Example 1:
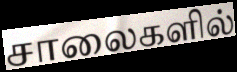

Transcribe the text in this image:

சாலைகளில்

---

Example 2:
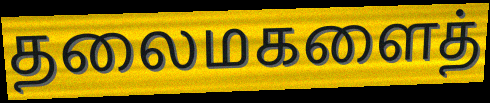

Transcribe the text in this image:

தலைமகளைத்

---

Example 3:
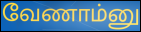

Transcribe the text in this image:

வேணாம்னு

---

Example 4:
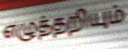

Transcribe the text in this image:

எழுத்தறியும்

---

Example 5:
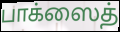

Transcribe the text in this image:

பாக்ஸைத்